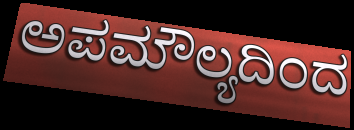
ಅಪಮೌಲ್ಯದಿಂದ